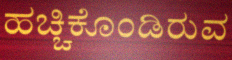
ಹಚ್ಚಿಕೊಂಡಿರುವ